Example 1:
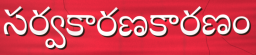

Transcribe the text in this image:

సర్వకారణకారణం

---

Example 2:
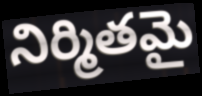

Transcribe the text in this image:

నిర్మితమై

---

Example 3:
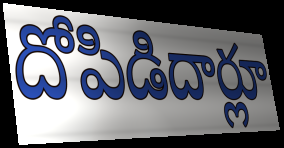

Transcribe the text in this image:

దోపిడిదార్లూ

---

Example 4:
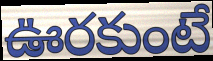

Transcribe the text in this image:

ఊరకుంటే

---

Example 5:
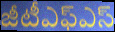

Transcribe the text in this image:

జీటీఎఫ్ఎస్